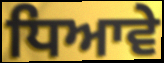
ਧਿਆਵੇ